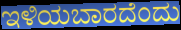
ಇಳಿಯಬಾರದೆಂದು